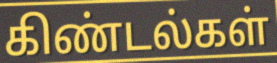
கிண்டல்கள்